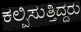
ಕಲ್ಪಿಸುತ್ತಿದ್ದರು